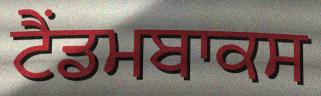
ਟੈਂਡਮਬਾਕਸ